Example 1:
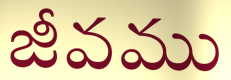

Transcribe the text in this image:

జీవము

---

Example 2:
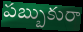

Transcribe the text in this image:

పబ్బుకురా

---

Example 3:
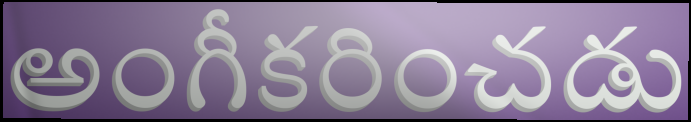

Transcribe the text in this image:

అంగీకరించడు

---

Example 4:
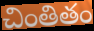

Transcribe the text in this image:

చింతితం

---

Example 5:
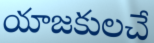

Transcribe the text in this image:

యాజకులచే